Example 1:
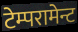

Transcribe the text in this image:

टेम्परामेन्ट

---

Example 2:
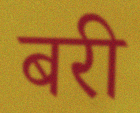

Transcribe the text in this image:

बरी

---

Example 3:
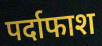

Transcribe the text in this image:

पर्दाफाश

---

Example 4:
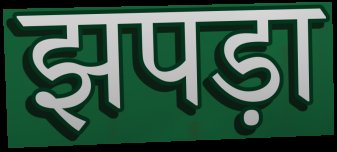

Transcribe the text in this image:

झपड़ा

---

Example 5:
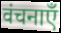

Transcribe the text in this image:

वंचनाएँ